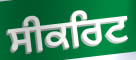
ਸੀਕਰਿਟ